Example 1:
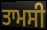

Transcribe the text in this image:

ਤਾਮਸੀ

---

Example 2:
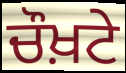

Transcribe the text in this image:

ਚੌਖ਼ਟੇ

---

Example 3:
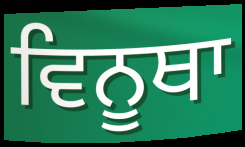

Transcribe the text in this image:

ਵਿਨੂਥਾ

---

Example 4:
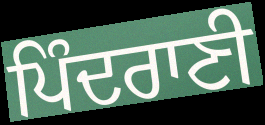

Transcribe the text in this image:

ਪਿੰਦਰਾਣੀ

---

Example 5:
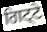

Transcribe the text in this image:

ਗਿਟ੍ਟੇ